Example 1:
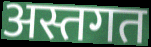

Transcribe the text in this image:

अस्तगत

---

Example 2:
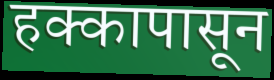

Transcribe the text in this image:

हक्कापासून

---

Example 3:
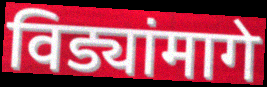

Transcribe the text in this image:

विड्यांमागे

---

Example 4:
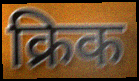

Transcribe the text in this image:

क्रिक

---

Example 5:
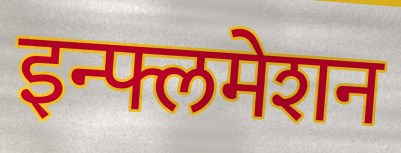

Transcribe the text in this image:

इन्फ्लमेशन